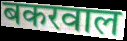
बकरवाल